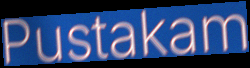
Pustakam